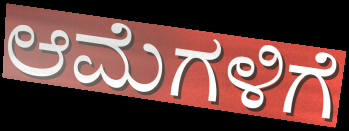
ಆಮೆಗಳಿಗೆ